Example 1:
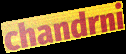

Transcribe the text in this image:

chandrni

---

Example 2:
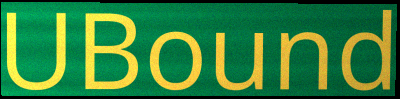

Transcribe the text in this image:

UBound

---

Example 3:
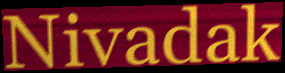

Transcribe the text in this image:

Nivadak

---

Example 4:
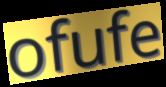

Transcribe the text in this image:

ofufe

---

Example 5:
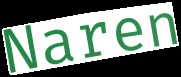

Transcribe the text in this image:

Naren